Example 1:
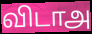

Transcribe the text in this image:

விடாஅ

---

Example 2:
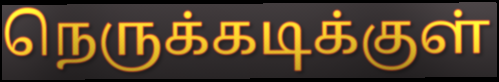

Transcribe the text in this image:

நெருக்கடிக்குள்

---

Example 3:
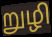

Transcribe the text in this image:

றுழி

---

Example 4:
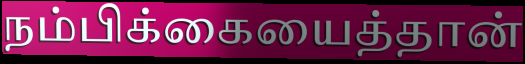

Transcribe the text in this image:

நம்பிக்கையைத்தான்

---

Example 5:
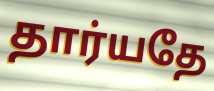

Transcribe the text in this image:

தார்யதே